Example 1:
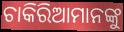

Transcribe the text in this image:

ଚାକିରିଆମାନଙ୍କୁ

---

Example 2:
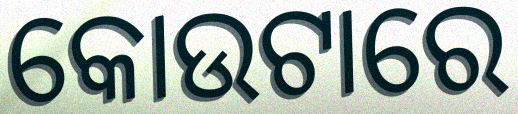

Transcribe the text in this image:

କୋଉଟାରେ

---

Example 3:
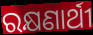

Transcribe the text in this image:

ରକ୍ଷଣାର୍ଥୀ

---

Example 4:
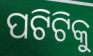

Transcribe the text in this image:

ପଟିଟିକୁ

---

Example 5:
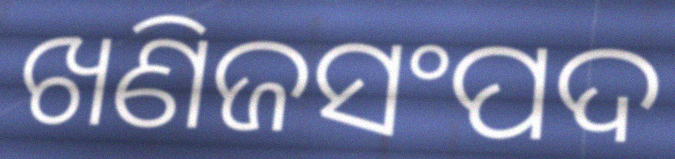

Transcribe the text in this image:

ଖଣିଜସଂପଦ